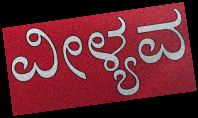
ವೀಳ್ಯವ